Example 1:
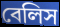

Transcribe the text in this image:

বেলিস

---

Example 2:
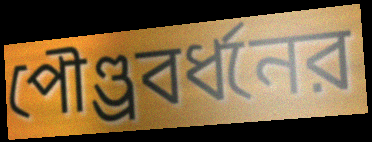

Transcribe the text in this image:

পৌণ্ড্রবর্ধনের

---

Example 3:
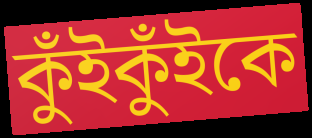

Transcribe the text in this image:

কুঁইকুঁইকে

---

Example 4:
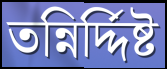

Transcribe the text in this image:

তন্নির্দ্দিষ্ট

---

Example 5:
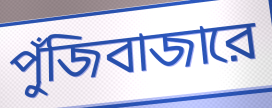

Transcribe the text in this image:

পুঁজিবাজারে